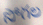
సోగల